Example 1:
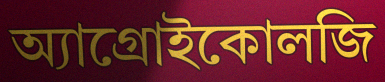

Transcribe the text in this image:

অ্যাগ্রোইকোলজি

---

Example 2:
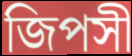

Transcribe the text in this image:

জিপসী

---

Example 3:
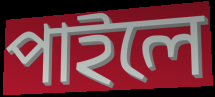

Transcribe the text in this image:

পাইলে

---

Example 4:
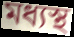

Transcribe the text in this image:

মধ্যস্থ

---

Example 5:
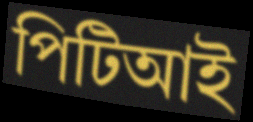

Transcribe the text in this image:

পিটিআই